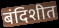
बंदिशीत